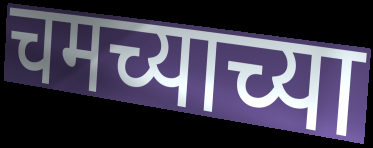
चमच्याच्या